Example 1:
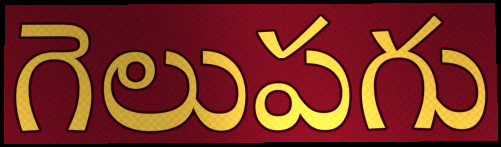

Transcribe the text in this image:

గెలుపగు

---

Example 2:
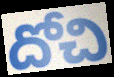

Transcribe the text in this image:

దోచి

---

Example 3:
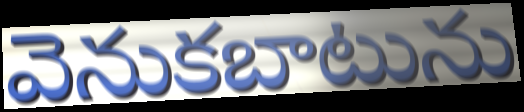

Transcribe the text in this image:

వెనుకబాటును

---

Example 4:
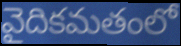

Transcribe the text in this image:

వైదికమతంలో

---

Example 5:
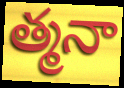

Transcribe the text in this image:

త్మనా